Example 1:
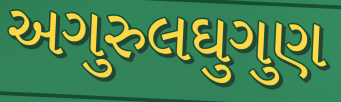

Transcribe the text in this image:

અગુરુલઘુગુણ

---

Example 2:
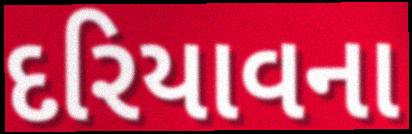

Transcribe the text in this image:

દરિયાવના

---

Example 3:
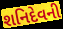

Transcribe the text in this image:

શનિદેવની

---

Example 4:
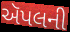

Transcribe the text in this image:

ઍપલની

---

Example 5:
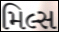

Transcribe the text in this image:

મિલ્સ